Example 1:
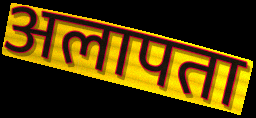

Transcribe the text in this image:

अलापता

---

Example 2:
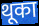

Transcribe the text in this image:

थूका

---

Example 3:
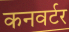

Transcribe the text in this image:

कनवर्टर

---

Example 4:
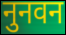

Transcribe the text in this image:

नुनवन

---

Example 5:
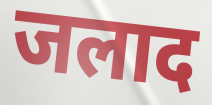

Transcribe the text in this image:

जलाद